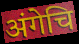
अंगेचि